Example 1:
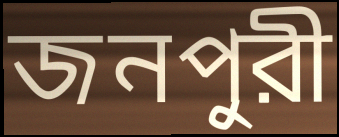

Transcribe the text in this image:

জনপুরী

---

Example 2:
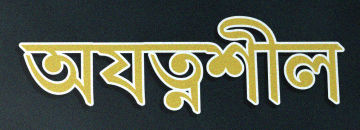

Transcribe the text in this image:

অযত্নশীল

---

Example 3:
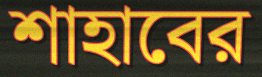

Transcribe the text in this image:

শাহাবের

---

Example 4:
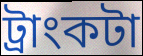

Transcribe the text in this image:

ট্রাংকটা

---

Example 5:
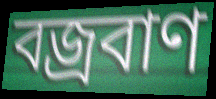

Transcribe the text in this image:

বজ্রবাণ